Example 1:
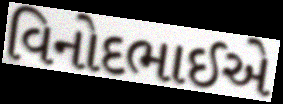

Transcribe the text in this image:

વિનોદભાઈએ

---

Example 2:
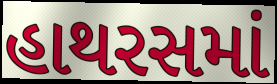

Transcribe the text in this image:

હાથરસમાં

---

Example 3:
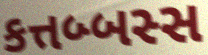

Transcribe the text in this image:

કત્તબ્બસ્સ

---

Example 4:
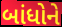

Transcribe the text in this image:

બાંધોને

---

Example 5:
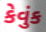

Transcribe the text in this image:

કેવુંક